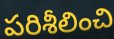
పరిశీలించి